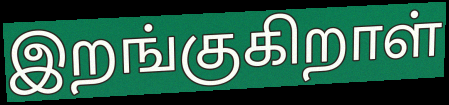
இறங்குகிறாள்